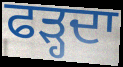
ਫੜ੍ਹਦਾ